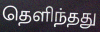
தெளிந்தது